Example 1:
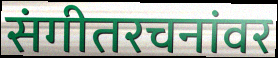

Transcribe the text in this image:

संगीतरचनांवर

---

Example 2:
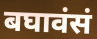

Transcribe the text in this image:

बघावंसं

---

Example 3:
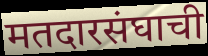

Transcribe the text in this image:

मतदारसंघाची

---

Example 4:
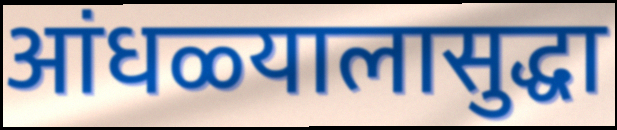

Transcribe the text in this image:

आंधळ्यालासुद्धा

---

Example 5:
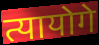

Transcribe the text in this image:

त्यायोगे